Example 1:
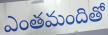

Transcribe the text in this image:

ఎంతమందితో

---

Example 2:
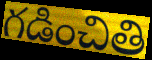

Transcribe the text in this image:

గడించితి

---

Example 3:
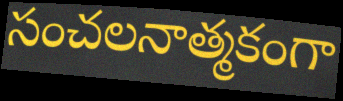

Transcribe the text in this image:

సంచలనాత్మకంగా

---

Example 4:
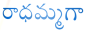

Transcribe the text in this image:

రాధమ్మగా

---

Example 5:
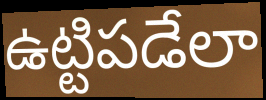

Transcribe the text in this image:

ఉట్టిపడేలా